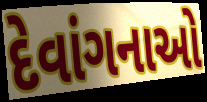
દેવાંગનાઓ